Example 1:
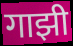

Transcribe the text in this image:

गाझी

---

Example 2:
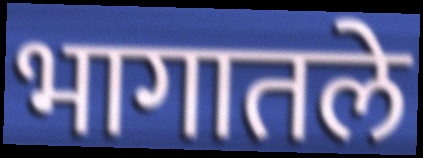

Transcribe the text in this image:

भागातले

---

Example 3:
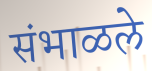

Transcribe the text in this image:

संभाळले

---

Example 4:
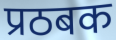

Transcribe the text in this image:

प्रठबक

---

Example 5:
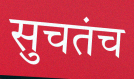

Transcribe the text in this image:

सुचतंच